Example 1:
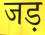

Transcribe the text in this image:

जड़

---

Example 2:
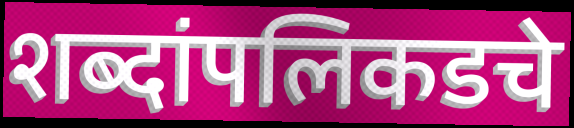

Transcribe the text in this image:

शब्दांपलिकडचे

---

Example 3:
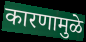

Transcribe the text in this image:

कारणामुळे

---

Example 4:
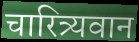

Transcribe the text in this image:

चारित्र्यवान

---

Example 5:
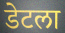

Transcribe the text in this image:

डेटला